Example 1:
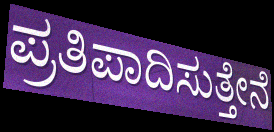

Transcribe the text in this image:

ಪ್ರತಿಪಾದಿಸುತ್ತೇನೆ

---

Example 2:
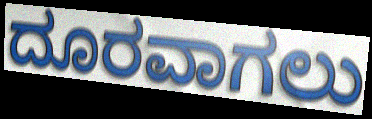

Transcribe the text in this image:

ದೂರವಾಗಲು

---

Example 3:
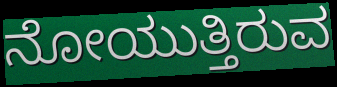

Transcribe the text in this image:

ನೋಯುತ್ತಿರುವ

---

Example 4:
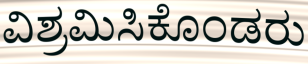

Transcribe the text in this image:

ವಿಶ್ರಮಿಸಿಕೊಂಡರು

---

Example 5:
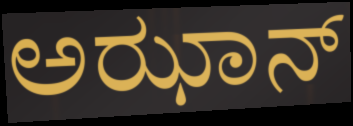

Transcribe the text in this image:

ಅಝಾನ್